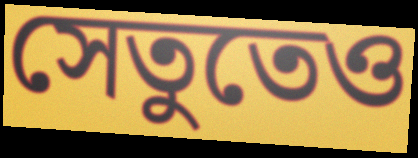
সেতুতেও